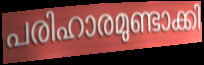
പരിഹാരമുണ്ടാക്കി